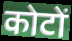
कोटों